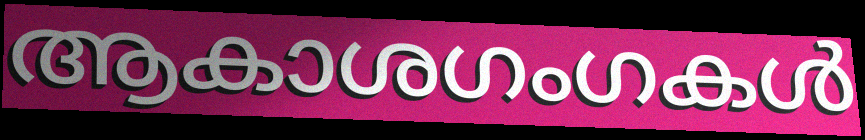
ആകാശഗംഗകൾ